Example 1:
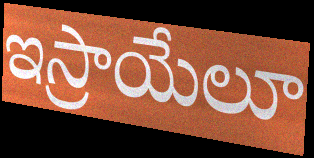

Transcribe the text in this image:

ఇస్రాయేలూ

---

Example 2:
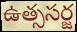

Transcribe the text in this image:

ఉత్ససర్జ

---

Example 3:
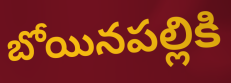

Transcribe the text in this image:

బోయినపల్లికి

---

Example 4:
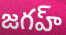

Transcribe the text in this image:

జగహ్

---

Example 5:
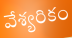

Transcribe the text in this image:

వేశ్యరికం